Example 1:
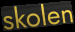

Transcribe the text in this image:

skolen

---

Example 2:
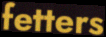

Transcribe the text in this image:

fetters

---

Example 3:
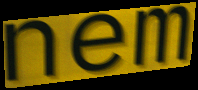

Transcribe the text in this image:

nem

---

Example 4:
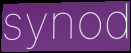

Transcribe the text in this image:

synod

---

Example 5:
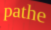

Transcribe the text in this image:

pathe